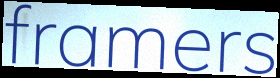
framers